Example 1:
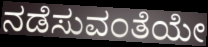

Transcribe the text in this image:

ನಡೆಸುವಂತೆಯೇ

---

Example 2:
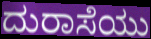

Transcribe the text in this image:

ದುರಾಸೆಯು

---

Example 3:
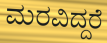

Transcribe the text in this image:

ಮರವಿದ್ದರೆ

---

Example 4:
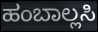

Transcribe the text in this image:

ಹಂಬಾಲ್ಲಸಿ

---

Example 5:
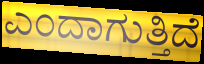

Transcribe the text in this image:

ಎಂದಾಗುತ್ತಿದೆ